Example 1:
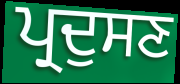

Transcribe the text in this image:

ਪ੍ਰਦੁਸਣ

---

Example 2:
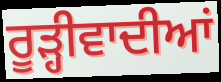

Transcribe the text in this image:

ਰੂੜ੍ਹੀਵਾਦੀਆਂ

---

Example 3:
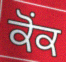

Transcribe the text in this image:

ਕੋਂਕ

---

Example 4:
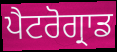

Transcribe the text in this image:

ਪੈਟਰੋਗ੍ਰਾਡ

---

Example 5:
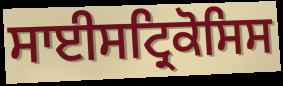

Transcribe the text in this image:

ਸਾਈਸਟ੍ਰਿਕੋਸਿਸ